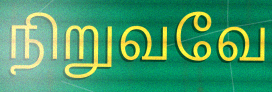
நிறுவவே